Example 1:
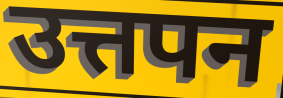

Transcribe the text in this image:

उत्तपन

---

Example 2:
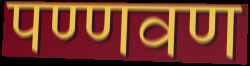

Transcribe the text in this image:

पण्णवण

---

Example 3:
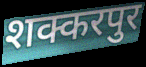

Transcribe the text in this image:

शक्करपुर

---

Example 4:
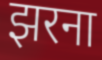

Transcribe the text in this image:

झरना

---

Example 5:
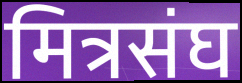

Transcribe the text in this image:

मित्रसंघ